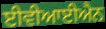
ਈਵੀਆਈਐਨ